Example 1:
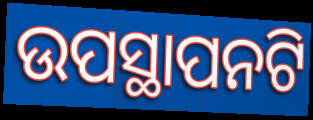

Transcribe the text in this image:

ଉପସ୍ଥାପନଟି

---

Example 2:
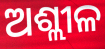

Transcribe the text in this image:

ଅଶ୍ଲୀଳ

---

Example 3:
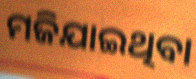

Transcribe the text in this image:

ମଜିଯାଇଥିବା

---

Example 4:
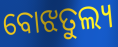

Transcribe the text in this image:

ବୋଝତୁଲ୍ୟ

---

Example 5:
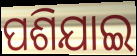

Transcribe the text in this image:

ପଶିଯାଇ